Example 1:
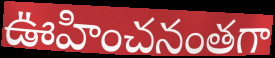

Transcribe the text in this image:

ఊహించనంతగా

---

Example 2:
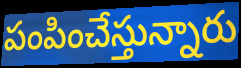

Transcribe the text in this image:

పంపించేస్తున్నారు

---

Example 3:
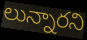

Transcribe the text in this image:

లున్నారని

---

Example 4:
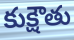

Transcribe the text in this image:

కుక్షౌతు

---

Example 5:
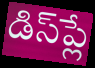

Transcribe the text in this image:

డిస్‌ప్లే